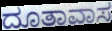
ದೂತಾವಾಸ